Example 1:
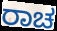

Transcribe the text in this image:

ರಾಚ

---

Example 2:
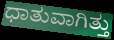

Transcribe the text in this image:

ಧಾತುವಾಗಿತ್ತು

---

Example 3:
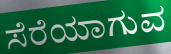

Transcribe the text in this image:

ಸೆರೆಯಾಗುವ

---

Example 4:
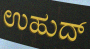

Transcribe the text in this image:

ಉಹುದ್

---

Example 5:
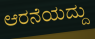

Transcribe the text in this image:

ಆರನೆಯದ್ದು